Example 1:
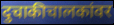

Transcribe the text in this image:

दुचाकीचालकांवर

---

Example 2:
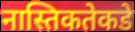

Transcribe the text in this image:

नास्तिकतेकडे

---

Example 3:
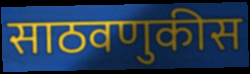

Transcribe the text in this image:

साठवणुकीस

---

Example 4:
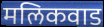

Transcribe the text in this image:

मलिकवाड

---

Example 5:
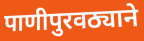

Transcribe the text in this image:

पाणीपुरवठ्याने